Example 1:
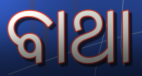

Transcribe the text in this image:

ବାଥା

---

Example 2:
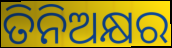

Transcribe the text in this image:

ତିନିଅକ୍ଷର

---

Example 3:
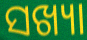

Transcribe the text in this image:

ସଖ୍ୟା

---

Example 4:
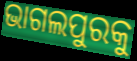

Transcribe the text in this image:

ଭାଗଲପୁରକୁ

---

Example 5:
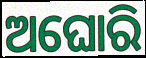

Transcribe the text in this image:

ଅଘୋରି